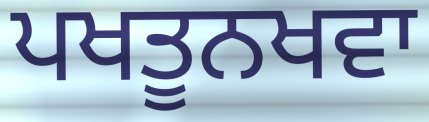
ਪਖਤੂਨਖਵਾ